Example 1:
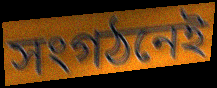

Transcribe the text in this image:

সংগঠনেই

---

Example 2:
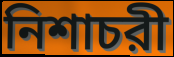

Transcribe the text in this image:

নিশাচরী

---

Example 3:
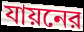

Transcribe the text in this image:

যায়নের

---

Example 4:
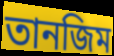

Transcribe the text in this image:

তানজিম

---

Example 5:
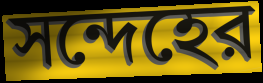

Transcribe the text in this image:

সন্দেহের